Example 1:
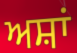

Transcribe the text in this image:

ਅਸ਼ਾਂ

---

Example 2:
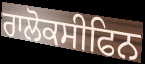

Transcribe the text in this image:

ਰਾਲੋਕਸੀਫਿਨ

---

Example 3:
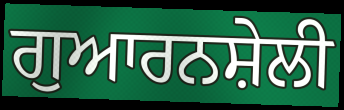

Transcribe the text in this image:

ਗੁਆਰਨਸ਼ੇਲੀ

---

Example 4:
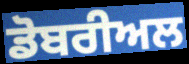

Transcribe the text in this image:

ਡੋਬਰੀਅਲ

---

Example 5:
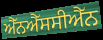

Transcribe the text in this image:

ਐੱਨਐੱਸਸੀਐੱਨ